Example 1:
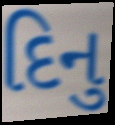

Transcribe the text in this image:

દિનુ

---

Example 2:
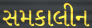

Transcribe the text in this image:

સમકાલીન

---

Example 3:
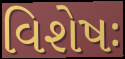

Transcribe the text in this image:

વિશેષઃ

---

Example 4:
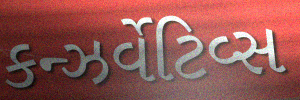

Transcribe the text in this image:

કન્ઝર્વેટિવ્સ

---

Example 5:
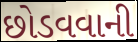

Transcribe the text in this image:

છોડવવાની